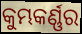
କୁମ୍ଭକର୍ଣ୍ଣର